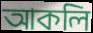
আকলি